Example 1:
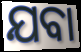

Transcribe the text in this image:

ଯବା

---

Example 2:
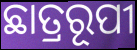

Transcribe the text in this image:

ଛାତ୍ରରୂପୀ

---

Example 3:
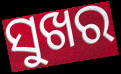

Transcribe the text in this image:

ସୁଖର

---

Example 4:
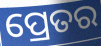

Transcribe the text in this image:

ପ୍ରେତର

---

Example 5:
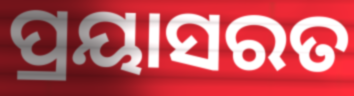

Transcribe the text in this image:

ପ୍ରୟାସରତ